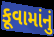
કૂવામાંનું